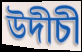
উদীচী